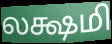
லக்ஷமி